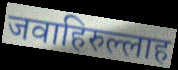
जवाहिरुल्लाह